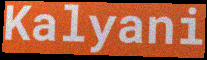
Kalyani